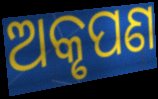
ଅକୃପଣ